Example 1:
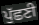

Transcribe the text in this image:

ਪੁੱਛਣੀ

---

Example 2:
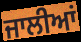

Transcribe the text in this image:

ਜਾਲੀਆਂ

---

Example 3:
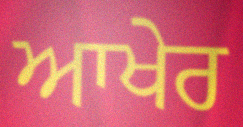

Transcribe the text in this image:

ਆਖੇਰ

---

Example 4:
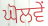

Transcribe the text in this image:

ਘੋਲਵੇਂ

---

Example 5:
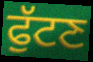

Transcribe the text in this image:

ਫੁੱਟਣ